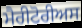
ਮੈਰੀਟੋਰੀਅਸ